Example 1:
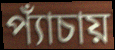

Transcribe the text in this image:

প্যাঁচায়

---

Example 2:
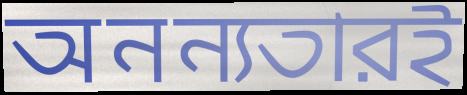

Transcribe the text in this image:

অনন্যতারই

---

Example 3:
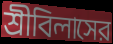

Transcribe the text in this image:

শ্রীবিলাসের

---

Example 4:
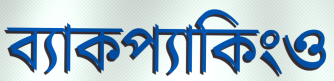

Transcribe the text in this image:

ব্যাকপ্যাকিংও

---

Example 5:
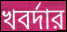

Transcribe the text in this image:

খবর্দার